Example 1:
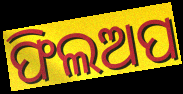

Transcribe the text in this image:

ଫିଲଅପ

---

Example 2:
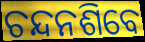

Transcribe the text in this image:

ଚନ୍ଦନଶିବେ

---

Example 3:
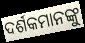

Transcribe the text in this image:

ଦର୍ଶକମାନଙ୍କୁ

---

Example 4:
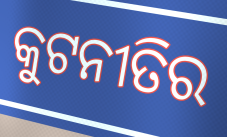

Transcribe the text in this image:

କୁଟନୀତିର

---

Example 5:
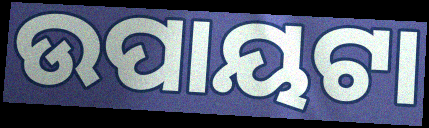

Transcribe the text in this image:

ଉପାୟଟା